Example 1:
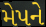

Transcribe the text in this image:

મેપને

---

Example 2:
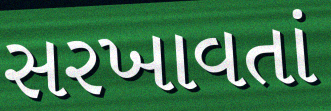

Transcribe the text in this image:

સરખાવતાં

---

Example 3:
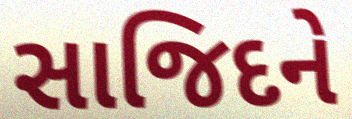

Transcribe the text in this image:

સાજિદને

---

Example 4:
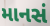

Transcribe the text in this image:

માનસં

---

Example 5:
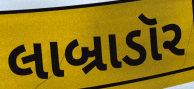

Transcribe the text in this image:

લાબ્રાડૉર